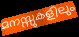
മനസ്സുകളിലും